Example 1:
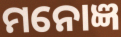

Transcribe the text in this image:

ମନୋଜ୍ଞ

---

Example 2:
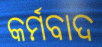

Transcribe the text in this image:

କର୍ମବାଦ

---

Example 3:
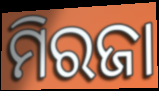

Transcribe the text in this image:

ମିରଜା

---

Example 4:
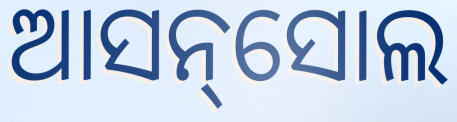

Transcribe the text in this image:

ଆସନ୍‌ସୋଲ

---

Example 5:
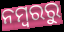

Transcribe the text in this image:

ନମ୍ୱରରୁ